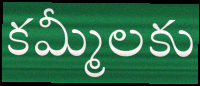
కమ్మీలకు